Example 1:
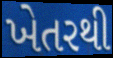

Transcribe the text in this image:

ખેતરથી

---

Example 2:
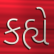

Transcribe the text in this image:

કહ્યે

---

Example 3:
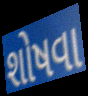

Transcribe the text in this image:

શોષવા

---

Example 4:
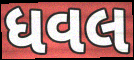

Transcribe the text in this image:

ધવલ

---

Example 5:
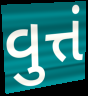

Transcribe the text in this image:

વુત્તં